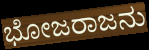
ಭೋಜರಾಜನು